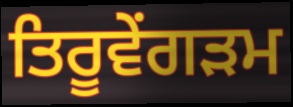
ਤਿਰੂਵੇਂਗੜਮ